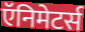
ऍनिमेटर्स